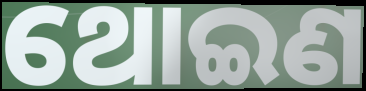
ଥୋଇଣ